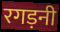
रगड़नी